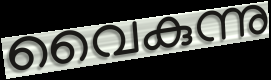
വൈകുന്നു